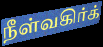
நீள்வகிர்க்